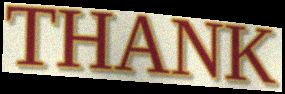
THANK